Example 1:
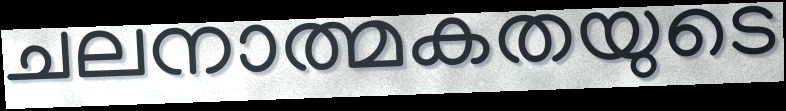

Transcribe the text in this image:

ചലനാത്മകതയുടെ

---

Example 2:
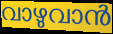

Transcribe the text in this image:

വാഴുവാൻ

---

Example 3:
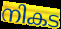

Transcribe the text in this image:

നികട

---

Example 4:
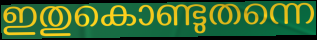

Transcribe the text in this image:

ഇതുകൊണ്ടുതന്നെ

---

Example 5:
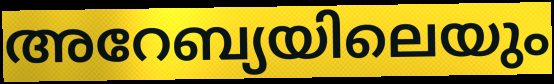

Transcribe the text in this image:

അറേബ്യയിലെയും